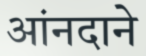
आंनदाने